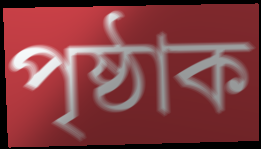
পৃষ্ঠাক